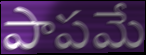
పాపమే